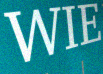
WIE